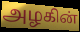
அழகின்